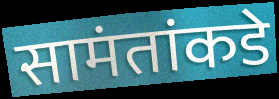
सामंतांकडे